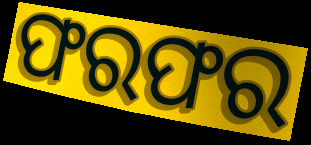
ଫରଫର